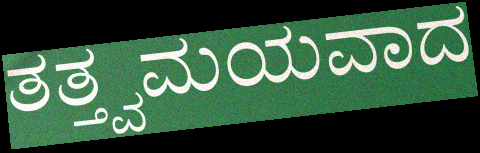
ತತ್ತ್ವಮಯವಾದ